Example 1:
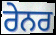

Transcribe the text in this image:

ਰੇਨਰ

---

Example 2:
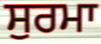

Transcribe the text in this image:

ਸੁਰਮਾ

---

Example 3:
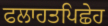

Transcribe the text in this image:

ਫਲਾਹਤਪਿਛੇਹ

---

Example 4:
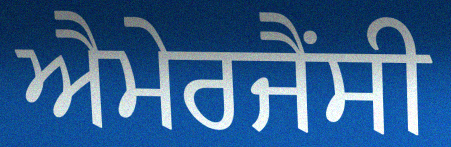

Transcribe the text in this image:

ਐਮੇਰਜੈਂਸੀ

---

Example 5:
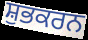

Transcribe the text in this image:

ਸ਼ੁਭਕਰਨ